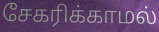
சேகரிக்காமல்